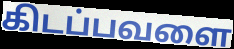
கிடப்பவளை